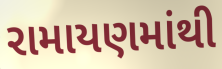
રામાયણમાંથી